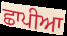
ਛਾਪੀਆ